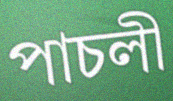
পাচলী